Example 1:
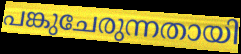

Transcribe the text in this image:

പങ്കുചേരുന്നതായി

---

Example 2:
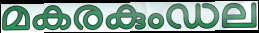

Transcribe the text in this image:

മകരകുംഡല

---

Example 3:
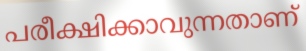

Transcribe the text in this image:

പരീക്ഷിക്കാവുന്നതാണ്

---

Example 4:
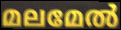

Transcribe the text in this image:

മലമേൽ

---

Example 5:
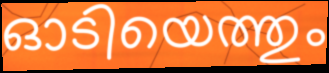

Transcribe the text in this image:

ഓടിയെത്തും